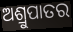
ଅଶ୍ରୁପାତର